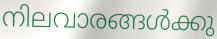
നിലവാരങ്ങൾക്കു